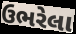
ઉભરેલા